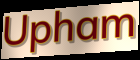
Upham